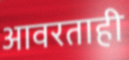
आवरताही